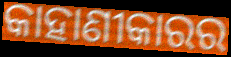
କାହାଣୀକାରର